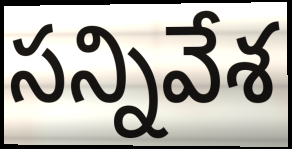
సన్నివేశ